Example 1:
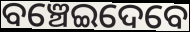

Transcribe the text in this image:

ବଞ୍ଚେଇଦେବେ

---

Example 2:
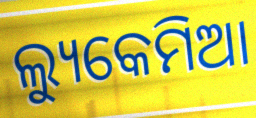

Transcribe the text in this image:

ଲ୍ୟୁକେମିଆ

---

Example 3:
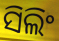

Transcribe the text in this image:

ସିଲିଂ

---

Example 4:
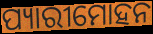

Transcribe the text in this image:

ପ୍ୟାରୀମୋହନ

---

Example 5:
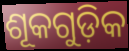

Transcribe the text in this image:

ଶୂକଗୁଡ଼ିକ